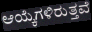
ಆಯ್ಕೆಗಳಿರುತ್ತವೆ